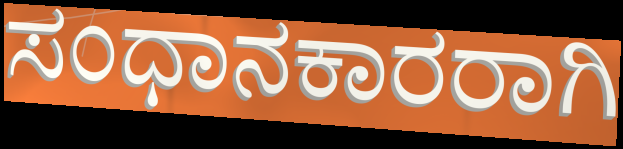
ಸಂಧಾನಕಾರರಾಗಿ